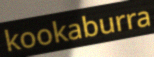
kookaburra